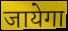
जायेगा